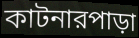
কাটনারপাড়া